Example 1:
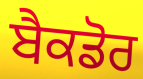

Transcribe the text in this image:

ਬੈਕਡੋਰ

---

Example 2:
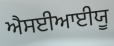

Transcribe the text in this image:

ਐਸਈਆਈਯੂ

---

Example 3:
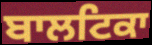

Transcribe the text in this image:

ਬਾਲਟਿਕਾ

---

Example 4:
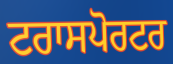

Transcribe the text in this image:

ਟਰਾਸਪੋਰਟਰ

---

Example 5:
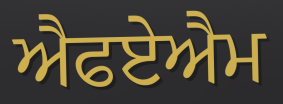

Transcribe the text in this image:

ਐਫਏਐਮ